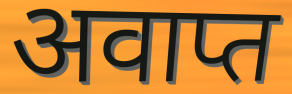
अवाप्त